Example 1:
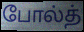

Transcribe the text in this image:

போல்த்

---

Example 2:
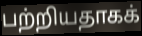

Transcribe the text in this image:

பற்றியதாகக்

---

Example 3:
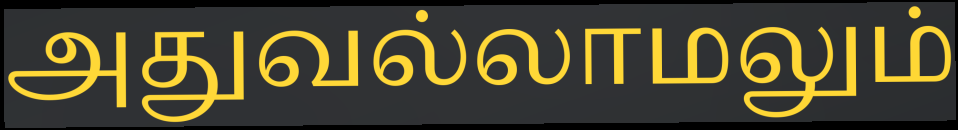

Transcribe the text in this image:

அதுவல்லாமலும்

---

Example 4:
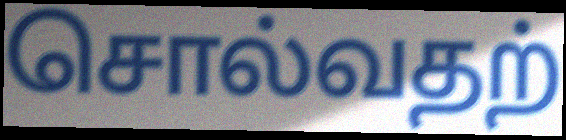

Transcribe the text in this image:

சொல்வதற்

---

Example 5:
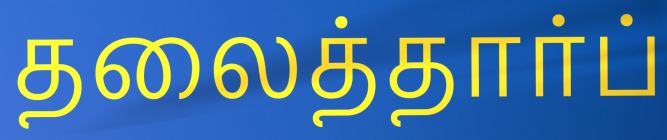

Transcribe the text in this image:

தலைத்தார்ப்